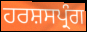
ਹਰਸ਼ਸਪ੍ਰੰਗ